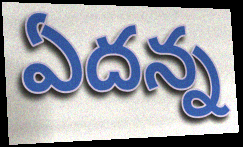
ఏదన్న